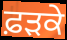
ਫ਼ਡ਼ਕੇ